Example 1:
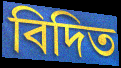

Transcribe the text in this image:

বিদিত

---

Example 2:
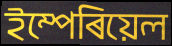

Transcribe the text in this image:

ইম্পেৰিয়েল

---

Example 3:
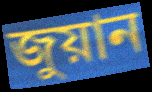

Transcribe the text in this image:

জুয়ান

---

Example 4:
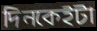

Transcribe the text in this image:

দিনকেইটা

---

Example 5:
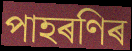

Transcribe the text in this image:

পাহৰণিৰ